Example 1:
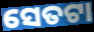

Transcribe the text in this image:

ସେତଟା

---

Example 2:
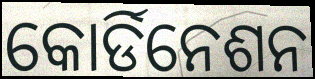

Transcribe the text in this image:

କୋର୍ଡିନେଶନ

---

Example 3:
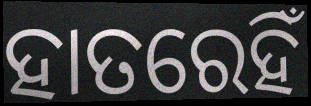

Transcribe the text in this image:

ହାତରେହିଁ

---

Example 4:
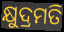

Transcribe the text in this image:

କ୍ଷୁଦ୍ରମତି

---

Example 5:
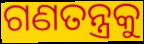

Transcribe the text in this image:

ଗଣତନ୍ତ୍ରକୁ